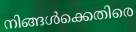
നിങ്ങൾക്കെതിരെ